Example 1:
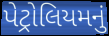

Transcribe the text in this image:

પેટ્રોલિયમનું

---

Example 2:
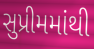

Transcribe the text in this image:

સુપ્રીમમાંથી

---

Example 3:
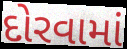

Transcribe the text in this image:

દોરવામાં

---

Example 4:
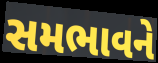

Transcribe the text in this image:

સમભાવને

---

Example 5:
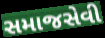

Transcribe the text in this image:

સમાજસેવી